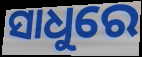
ସାଧୁରେ